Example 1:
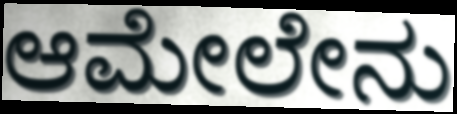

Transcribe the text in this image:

ಆಮೇಲೇನು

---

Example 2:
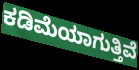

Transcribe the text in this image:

ಕಡಿಮೆಯಾಗುತ್ತಿವೆ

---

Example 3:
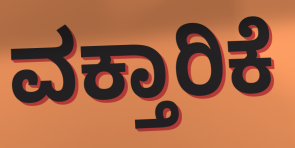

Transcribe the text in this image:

ವಕ್ತಾರಿಕೆ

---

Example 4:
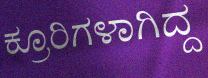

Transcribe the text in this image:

ಕ್ರೂರಿಗಳಾಗಿದ್ದ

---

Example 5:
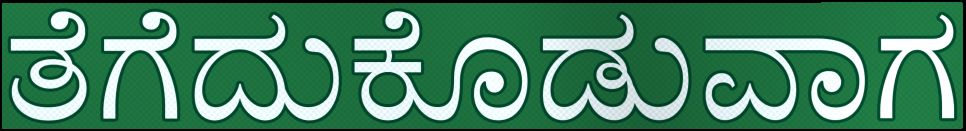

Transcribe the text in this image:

ತೆಗೆದುಕೊಡುವಾಗ